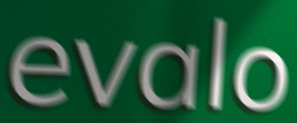
evalo